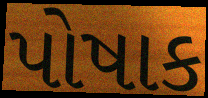
પોષાક